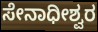
ಸೇನಾಧೀಶ್ವರ